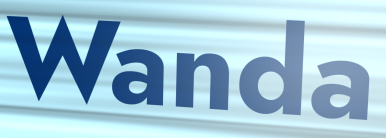
Wanda